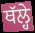
ਥੱਲ੍ਹੇ